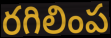
రగిలింప